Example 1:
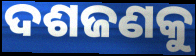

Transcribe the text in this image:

ଦଶଜଣକୁ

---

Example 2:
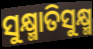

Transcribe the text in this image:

ସୁକ୍ଷ୍ମାତିସୁକ୍ଷ୍ମ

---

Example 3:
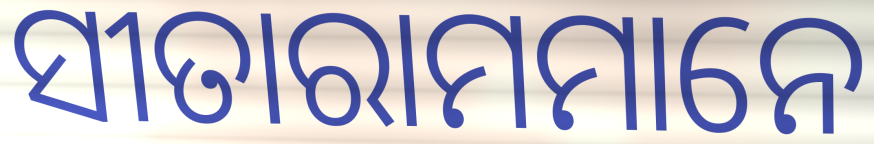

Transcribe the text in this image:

ସୀତାରାମମାନେ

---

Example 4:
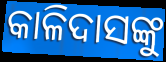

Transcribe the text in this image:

କାଳିଦାସଙ୍କୁ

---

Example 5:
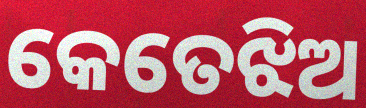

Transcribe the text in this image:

କେତେଝିଅ